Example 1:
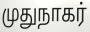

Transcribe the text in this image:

முதுநாகர்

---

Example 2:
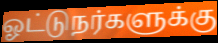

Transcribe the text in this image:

ஓட்டுநர்களுக்கு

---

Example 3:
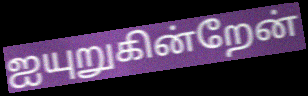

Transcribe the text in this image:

ஐயுறுகின்றேன்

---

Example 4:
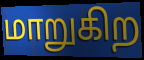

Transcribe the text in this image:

மாறுகிற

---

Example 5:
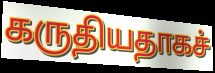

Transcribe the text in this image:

கருதியதாகச்